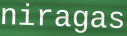
niragas